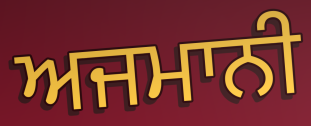
ਅਜਮਾਨੀ